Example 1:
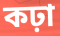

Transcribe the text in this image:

কঢ়া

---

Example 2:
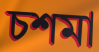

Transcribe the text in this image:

চশমা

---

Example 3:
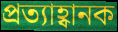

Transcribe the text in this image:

প্ৰত্যাহ্বানক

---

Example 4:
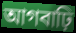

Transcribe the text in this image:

আগবাঢ়ি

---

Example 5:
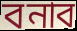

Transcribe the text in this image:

বনাব